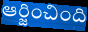
ఆర్జించింది